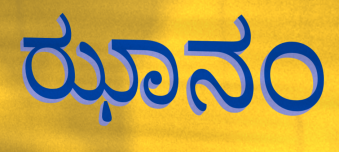
ಝಾನಂ